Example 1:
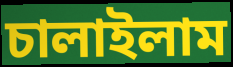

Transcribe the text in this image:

চালাইলাম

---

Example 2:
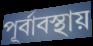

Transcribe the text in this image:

পূর্বাবস্থায়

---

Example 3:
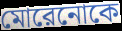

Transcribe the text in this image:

মোরেনোকে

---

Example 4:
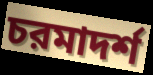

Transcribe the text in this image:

চরমাদর্শ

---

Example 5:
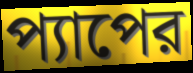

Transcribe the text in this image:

প্যাপের